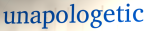
unapologetic